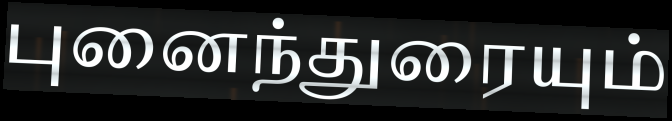
புனைந்துரையும்